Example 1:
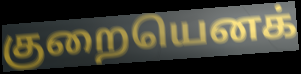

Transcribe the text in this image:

குறையெனக்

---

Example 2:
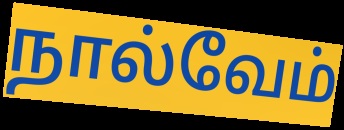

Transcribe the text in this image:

நால்வேம்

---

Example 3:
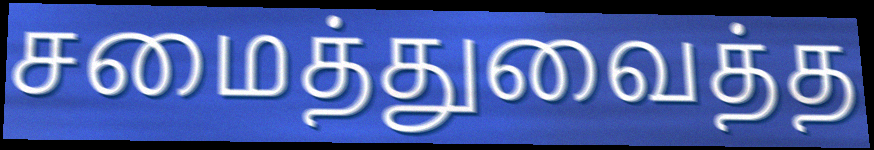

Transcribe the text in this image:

சமைத்துவைத்த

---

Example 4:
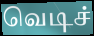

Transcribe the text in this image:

வெடிச்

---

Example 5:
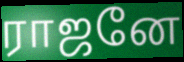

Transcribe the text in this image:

ராஜனே